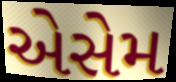
એસેમ